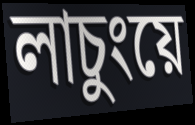
লাচুংয়ে